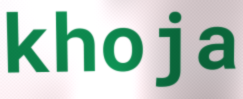
khoja